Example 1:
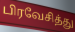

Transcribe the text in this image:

பிரவேசித்து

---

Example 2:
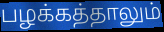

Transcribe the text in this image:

பழக்கத்தாலும்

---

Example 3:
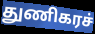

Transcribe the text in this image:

துணிகரச்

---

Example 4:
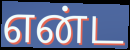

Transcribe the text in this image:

என்ட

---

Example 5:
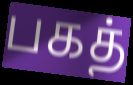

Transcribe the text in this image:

பகத்